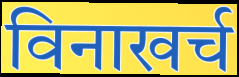
विनाखर्च